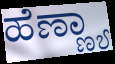
ಹೆಣ್ಣ್ಯಾ